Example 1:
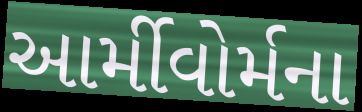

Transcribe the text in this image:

આર્મીવોર્મના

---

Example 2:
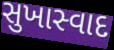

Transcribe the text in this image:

સુખાસ્વાદ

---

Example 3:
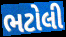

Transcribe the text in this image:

ભટોલી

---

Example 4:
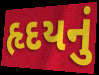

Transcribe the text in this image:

હૃદયનું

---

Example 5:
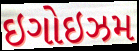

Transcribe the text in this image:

ઇગોઇઝમ